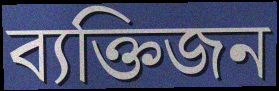
ব্যক্তিজন